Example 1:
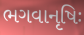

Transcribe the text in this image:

ભગવાનૃષિઃ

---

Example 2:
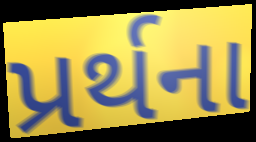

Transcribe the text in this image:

પ્રર્થના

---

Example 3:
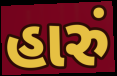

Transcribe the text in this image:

હારું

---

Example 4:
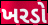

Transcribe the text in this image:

ખરડો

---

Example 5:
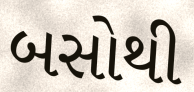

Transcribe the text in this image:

બસોથી